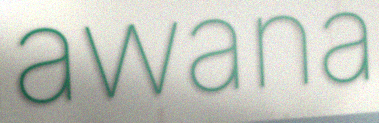
awana